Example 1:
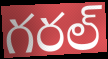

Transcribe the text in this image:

గరల్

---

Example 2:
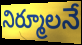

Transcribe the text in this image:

నిర్మూలనే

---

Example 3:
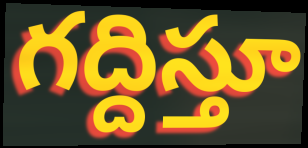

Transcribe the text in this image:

గద్దిస్తూ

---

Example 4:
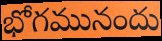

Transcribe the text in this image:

భోగమునందు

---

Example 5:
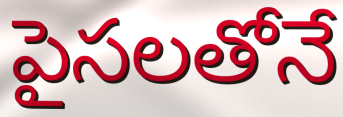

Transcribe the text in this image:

పైసలతోనే